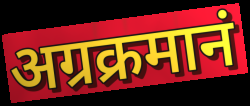
अग्रक्रमानं